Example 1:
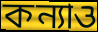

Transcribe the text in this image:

কন্যাও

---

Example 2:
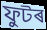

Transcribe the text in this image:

ফুটৰ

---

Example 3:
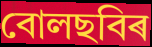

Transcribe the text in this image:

বোলছবিৰ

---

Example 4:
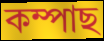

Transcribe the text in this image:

কম্পাছ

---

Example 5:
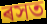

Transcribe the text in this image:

ৰসত